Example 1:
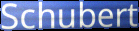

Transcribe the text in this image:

Schubert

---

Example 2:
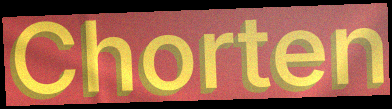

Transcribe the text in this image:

Chorten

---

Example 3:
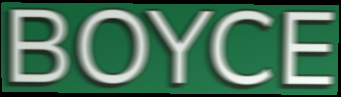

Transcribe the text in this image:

BOYCE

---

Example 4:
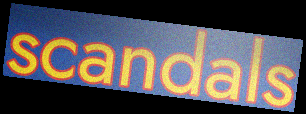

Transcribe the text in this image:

scandals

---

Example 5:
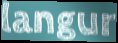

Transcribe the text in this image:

langur